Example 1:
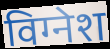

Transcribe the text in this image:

विग्‍नेश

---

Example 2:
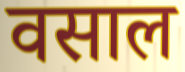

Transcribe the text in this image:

वसाल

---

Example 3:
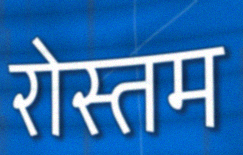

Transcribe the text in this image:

रोस्तम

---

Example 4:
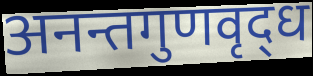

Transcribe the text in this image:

अनन्तगुणवृद्ध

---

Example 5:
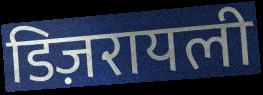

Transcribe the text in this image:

डिज़रायली